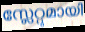
സ്ലേറ്റുമായി